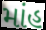
માંહ